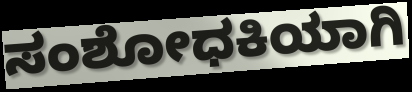
ಸಂಶೋಧಕಿಯಾಗಿ